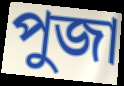
পুজা